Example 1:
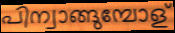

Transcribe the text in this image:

പിന്വാങ്ങുമ്പോള്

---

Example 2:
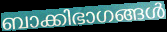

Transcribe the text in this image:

ബാക്കിഭാഗങ്ങൾ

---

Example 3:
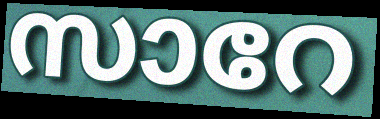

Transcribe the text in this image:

സാറേ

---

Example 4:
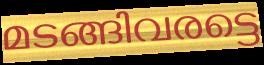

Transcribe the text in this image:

മടങ്ങിവരട്ടെ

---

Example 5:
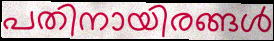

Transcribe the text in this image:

പതിനായിരങ്ങൾ